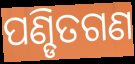
ପଣ୍ଡିତଗଣ